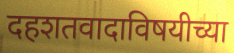
दहशतवादाविषयीच्या